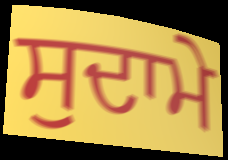
ਸੁਦਾਮੇ